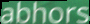
abhors